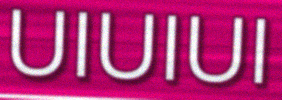
UIUIUI